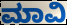
ಮಾವಿ